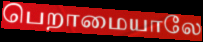
பெறாமையாலே